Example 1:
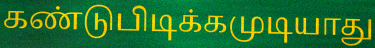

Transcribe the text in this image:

கண்டுபிடிக்கமுடியாது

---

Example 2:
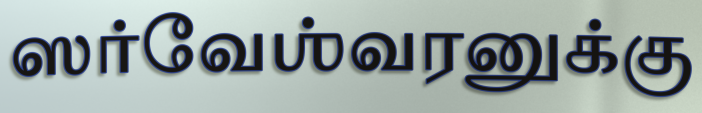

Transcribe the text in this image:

ஸர்வேஶ்வரனுக்கு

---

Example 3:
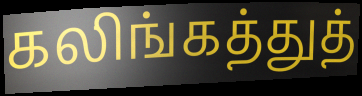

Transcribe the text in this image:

கலிங்கத்துத்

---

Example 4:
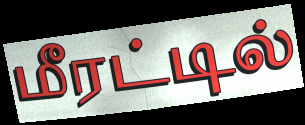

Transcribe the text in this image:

மீரட்டில்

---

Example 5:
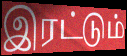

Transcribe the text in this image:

இரட்டும்